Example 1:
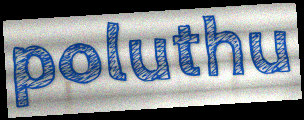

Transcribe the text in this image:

poluthu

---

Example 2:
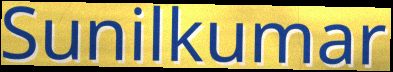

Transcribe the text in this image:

Sunilkumar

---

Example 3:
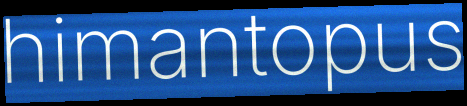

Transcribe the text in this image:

himantopus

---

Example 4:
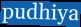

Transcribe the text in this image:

pudhiya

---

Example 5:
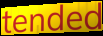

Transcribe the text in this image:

tended